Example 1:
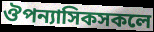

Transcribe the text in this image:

ঔপন্যাসিকসকলে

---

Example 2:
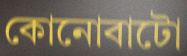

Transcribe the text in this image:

কোনোবাটো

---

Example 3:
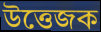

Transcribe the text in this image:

উত্তেজক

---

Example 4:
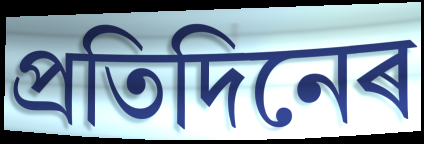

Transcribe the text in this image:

প্ৰতিদিনেৰ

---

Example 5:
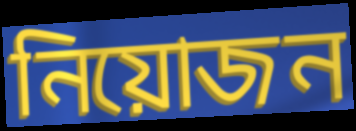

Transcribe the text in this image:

নিয়োজন